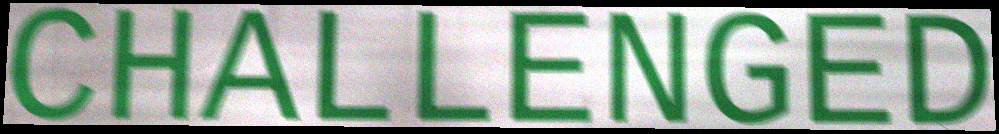
CHALLENGED